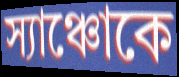
স্যাঞ্চোকে